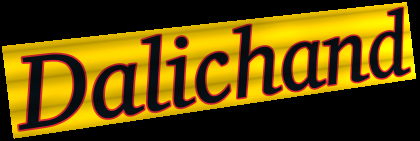
Dalichand